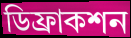
ডিফ্রাকশন